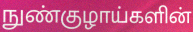
நுண்குழாய்களின்